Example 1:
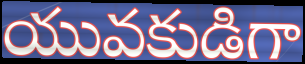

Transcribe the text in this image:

యువకుడిగా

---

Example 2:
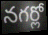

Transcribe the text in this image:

నగర్లో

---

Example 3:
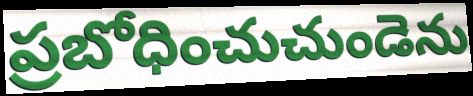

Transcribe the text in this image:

ప్రబోధించుచుండెను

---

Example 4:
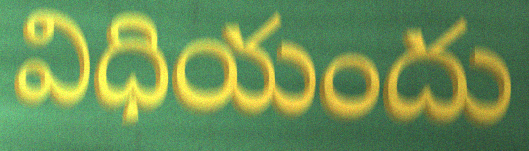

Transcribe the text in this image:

విధియందు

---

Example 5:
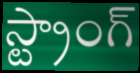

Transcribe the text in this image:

స్ట్రాంగ్